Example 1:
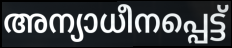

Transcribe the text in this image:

അന്യാധീനപ്പെട്ട്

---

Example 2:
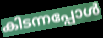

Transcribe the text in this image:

കിടന്നപ്പോൾ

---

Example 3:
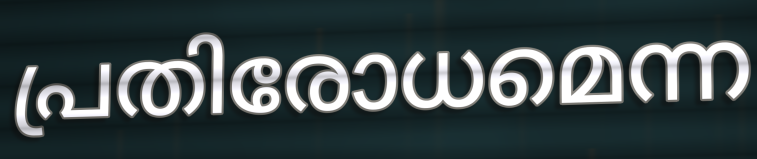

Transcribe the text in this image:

പ്രതിരോധമെന്ന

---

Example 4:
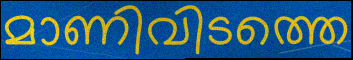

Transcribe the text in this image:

മാണിവിടത്തെ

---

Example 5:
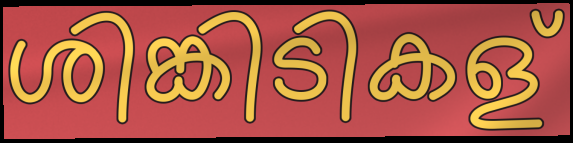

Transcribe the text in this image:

ശിങ്കിടികള്